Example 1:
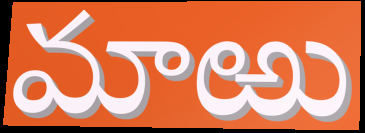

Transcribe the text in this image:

మాఱు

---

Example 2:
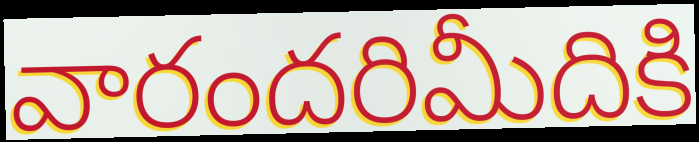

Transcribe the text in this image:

వారందరిమీదికి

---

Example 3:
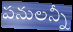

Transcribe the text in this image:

పనులన్నీ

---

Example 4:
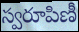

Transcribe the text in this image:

స్వరూపిణీ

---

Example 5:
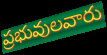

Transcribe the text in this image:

ప్రభువులవారు